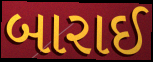
બારાઈ